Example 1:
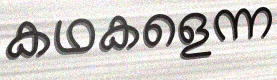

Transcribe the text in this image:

കഥകളെന്ന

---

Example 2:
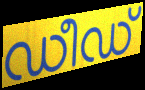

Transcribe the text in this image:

ഡീഡ്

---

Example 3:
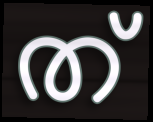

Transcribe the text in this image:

ത്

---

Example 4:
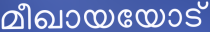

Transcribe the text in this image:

മീഖായയോട്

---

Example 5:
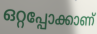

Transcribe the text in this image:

ഒറ്റപ്പോക്കാണ്